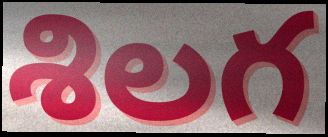
శిలగ